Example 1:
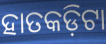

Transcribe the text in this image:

ହାତକଡ଼ିଟା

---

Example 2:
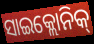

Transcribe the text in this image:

ସାଇକ୍ଲୋନିକ୍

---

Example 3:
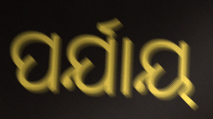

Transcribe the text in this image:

ପର୍ଯାୟ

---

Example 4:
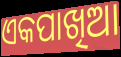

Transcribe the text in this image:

ଏକପାଖିଆ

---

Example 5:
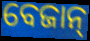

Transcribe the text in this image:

ବେଜାନ୍